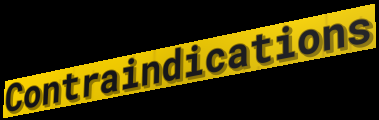
Contraindications